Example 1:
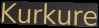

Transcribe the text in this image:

Kurkure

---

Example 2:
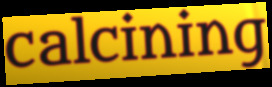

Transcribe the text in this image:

calcining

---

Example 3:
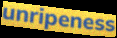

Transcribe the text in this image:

unripeness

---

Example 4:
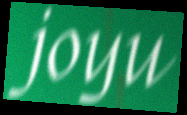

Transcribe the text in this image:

joyu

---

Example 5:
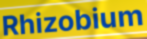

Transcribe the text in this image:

Rhizobium